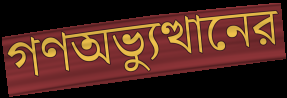
গণঅভ্যুত্থানের